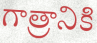
గాత్రానికి